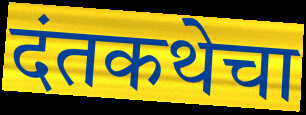
दंतकथेचा